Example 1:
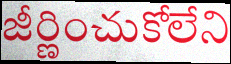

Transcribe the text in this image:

జీర్ణించుకోలేని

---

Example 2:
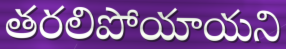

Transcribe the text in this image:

తరలిపోయాయని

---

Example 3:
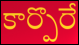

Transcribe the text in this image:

కార్పొరే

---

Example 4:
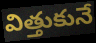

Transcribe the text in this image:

విత్తుకునే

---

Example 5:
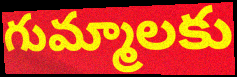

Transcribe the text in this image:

గుమ్మాలకు